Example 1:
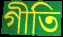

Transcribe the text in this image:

গীতি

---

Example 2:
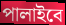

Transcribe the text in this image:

পালাইবে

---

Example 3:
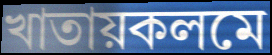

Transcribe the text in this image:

খাতায়কলমে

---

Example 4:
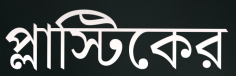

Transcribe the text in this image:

প্লাস্টিকের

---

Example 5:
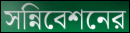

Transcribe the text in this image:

সন্নিবেশনের